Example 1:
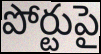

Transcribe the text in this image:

పోర్టుపై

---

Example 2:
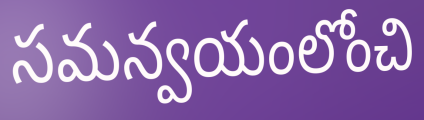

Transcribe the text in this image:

సమన్వయంలోంచి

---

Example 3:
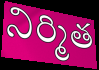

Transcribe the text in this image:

నిర్మిత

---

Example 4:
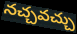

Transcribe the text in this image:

నచ్చవచ్చు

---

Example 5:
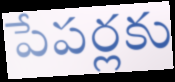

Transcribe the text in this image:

పేపర్లకు